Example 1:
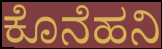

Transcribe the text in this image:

ಕೊನೆಹನಿ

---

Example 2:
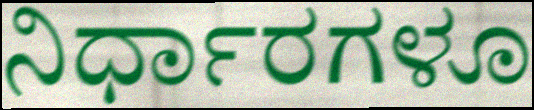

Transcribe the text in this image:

ನಿರ್ಧಾರಗಳೂ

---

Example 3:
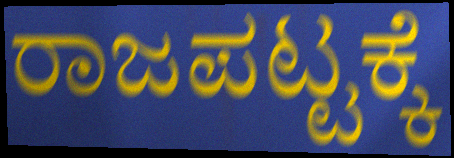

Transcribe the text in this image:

ರಾಜಪಟ್ಟಕ್ಕೆ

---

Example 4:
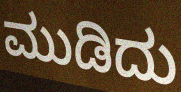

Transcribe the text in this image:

ಮುಡಿದು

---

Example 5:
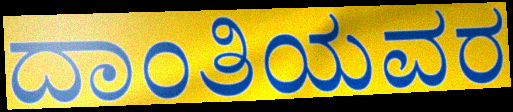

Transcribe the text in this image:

ದಾಂತಿಯವರ